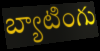
బ్యాటింగు